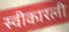
स्वीकारली